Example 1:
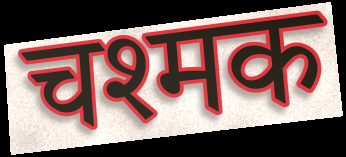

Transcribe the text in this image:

चश्मक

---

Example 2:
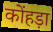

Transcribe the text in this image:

कोंहड़ा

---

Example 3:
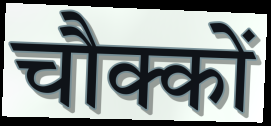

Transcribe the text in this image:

चौक्कों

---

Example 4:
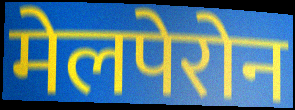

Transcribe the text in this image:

मेलपेरोन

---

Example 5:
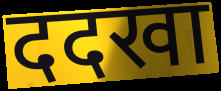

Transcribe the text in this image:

ददखा